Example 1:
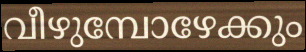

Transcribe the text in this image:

വീഴുമ്പോഴേക്കും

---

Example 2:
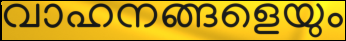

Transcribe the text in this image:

വാഹനങ്ങളെയും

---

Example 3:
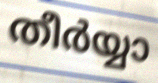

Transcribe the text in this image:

തീർയ്യാ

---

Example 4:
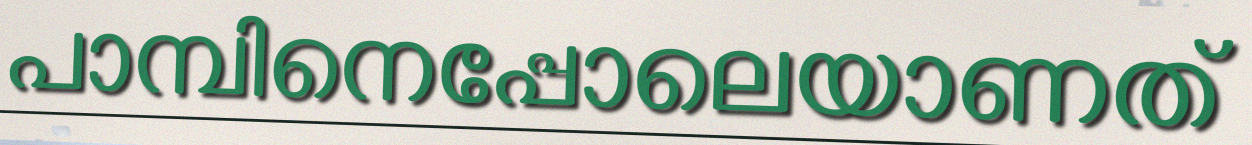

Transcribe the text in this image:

പാമ്പിനെപ്പോലെയാണത്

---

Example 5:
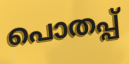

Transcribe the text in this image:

പൊതപ്പ്